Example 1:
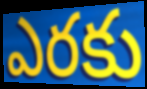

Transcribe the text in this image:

ఎరకు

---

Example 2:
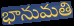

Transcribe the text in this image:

భానుమతి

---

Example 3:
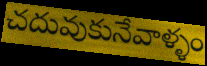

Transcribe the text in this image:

చదువుకునేవాళ్ళం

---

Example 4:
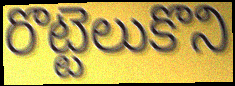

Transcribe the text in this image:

రొట్టెలుకొని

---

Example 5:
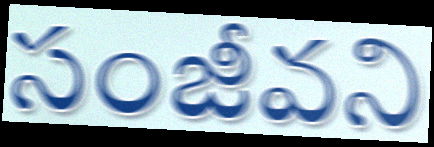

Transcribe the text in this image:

సంజీవని